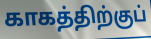
காகத்திற்குப்